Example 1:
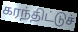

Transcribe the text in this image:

கரந்திட்டுச்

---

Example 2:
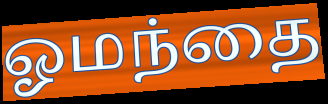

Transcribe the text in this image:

ஓமந்தை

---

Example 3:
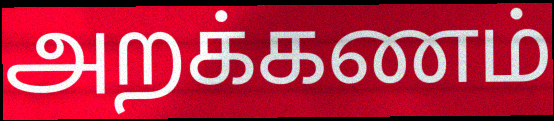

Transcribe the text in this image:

அறக்கணம்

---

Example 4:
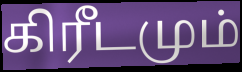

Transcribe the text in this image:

கிரீடமும்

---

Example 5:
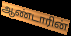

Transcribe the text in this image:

ஆண்டாரின்